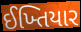
ઈખ્તિયાર